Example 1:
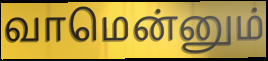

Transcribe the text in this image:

வாமென்னும்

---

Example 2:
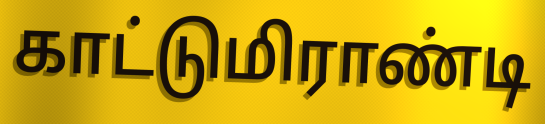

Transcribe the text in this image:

காட்டுமிராண்டி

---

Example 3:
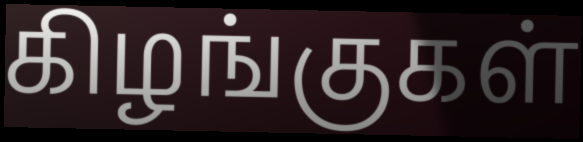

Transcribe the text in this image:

கிழங்குகள்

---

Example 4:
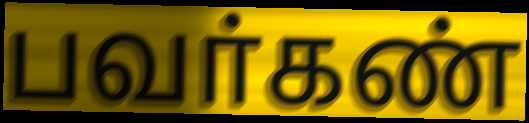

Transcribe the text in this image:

பவர்கண்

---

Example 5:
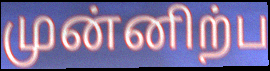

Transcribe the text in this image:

முன்னிற்ப